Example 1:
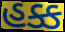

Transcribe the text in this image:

હક્ક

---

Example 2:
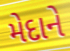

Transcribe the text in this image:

મેદાને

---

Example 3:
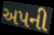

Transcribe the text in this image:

અપની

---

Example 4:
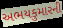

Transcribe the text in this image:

અભયકુમારની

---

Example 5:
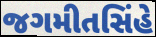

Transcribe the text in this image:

જગમીતસિંહે